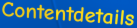
Contentdetails